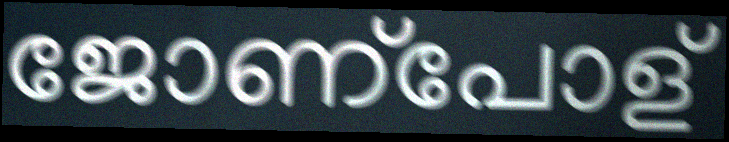
ജോണ്പോള്